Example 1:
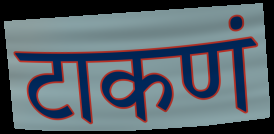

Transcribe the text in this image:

टाकणं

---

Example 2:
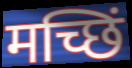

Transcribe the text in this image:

मच्छिं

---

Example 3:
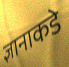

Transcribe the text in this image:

ज्ञानाकडे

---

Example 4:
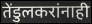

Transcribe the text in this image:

तेंडुलकरांनाही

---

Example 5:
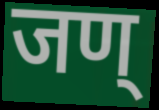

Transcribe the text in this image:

जण्